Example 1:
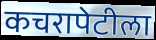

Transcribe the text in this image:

कचरापेटीला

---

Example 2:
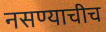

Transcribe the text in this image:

नसण्याचीच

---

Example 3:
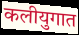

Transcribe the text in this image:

कलीयुगात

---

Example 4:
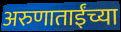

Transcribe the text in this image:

अरुणाताईंच्या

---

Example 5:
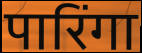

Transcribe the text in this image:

पारिंगा